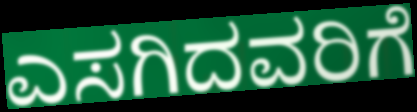
ಎಸಗಿದವರಿಗೆ